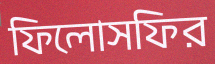
ফিলোসফির